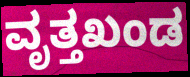
ವೃತ್ತಖಂಡ